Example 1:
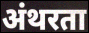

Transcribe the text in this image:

अंथरता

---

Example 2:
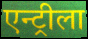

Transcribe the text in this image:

एन्ट्रीला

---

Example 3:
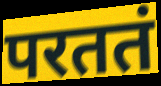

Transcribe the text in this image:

परततं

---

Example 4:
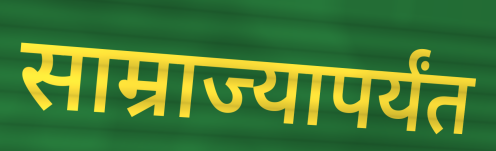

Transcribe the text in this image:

साम्राज्यापर्यंत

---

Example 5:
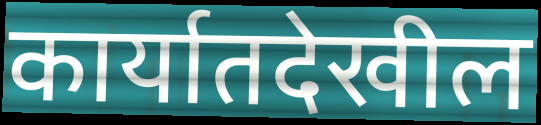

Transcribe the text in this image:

कार्यातदेखील